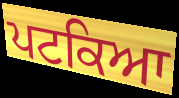
ਪਟਕਿਆ